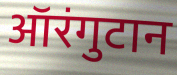
ऑरंगुटान